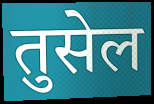
तुसेल